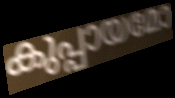
കുപ്പായമോ